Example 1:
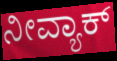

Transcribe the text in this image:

ನೀವ್ಯಾಕ್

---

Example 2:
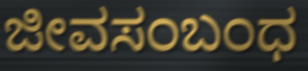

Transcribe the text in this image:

ಜೀವಸಂಬಂಧ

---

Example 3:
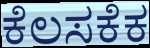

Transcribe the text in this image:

ಕೆಲಸಕೆಕ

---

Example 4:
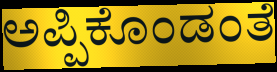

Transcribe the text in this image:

ಅಪ್ಪಿಕೊಂಡಂತೆ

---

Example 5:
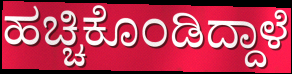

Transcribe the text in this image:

ಹಚ್ಚಿಕೊಂಡಿದ್ದಾಳೆ